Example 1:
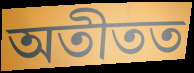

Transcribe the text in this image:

অতীতত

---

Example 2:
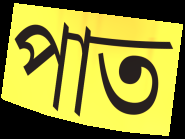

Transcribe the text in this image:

পাত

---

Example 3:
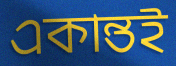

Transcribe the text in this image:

একান্তই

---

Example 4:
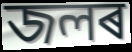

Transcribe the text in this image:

জলৰ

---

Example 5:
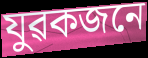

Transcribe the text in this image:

যুৱকজনে